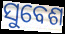
ସୁବେଶ